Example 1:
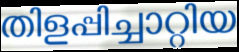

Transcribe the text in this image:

തിളപ്പിച്ചാറ്റിയ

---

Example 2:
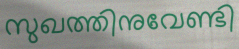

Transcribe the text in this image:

സുഖത്തിനുവേണ്ടി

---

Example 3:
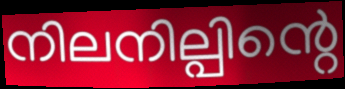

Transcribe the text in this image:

നിലനില്പിന്റെ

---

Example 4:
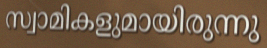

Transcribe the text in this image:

സ്വാമികളുമായിരുന്നു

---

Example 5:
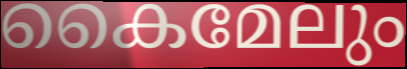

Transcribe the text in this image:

കൈമേലും